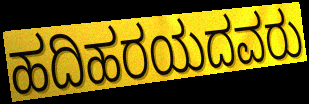
ಹದಿಹರಯದವರು